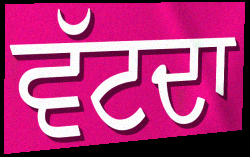
ਵੱਟਦਾ